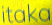
itaka